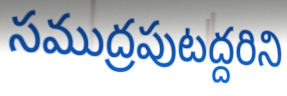
సముద్రపుటద్దరిని